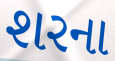
શરના